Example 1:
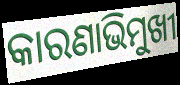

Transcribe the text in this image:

କାରଣାଭିମୁଖୀ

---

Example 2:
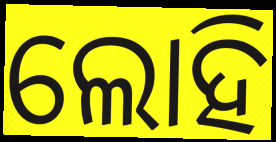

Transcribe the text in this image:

ଲୋହି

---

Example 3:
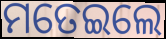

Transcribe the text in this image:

ମତେଇଲେ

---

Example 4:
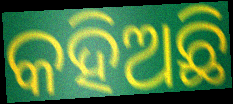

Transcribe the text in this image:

କହିଅଛି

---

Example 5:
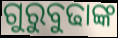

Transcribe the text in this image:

ଗୁରୁବୁଢାଙ୍କ